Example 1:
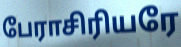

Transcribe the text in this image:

பேராசிரியரே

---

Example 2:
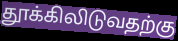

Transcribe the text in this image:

தூக்கிலிடுவதற்கு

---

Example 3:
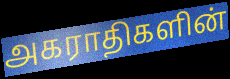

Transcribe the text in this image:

அகராதிகளின்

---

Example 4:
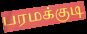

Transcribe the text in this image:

பரமக்குடி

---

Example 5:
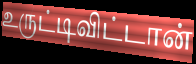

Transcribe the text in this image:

உருட்டிவிட்டான்